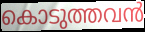
കൊടുത്തവൻ